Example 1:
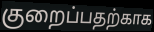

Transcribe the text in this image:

குறைப்பதற்காக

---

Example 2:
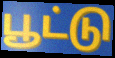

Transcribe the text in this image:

பூட்டு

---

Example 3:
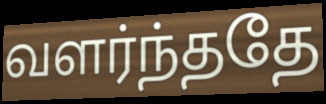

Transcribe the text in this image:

வளர்ந்ததே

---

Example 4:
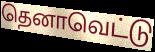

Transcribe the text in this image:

தெனாவெட்டு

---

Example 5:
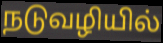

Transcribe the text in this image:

நடுவழியில்